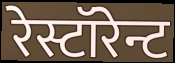
रेस्टॉरेन्ट